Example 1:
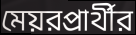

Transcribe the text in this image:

মেয়রপ্রার্থীর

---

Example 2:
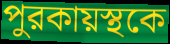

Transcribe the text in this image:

পুরকায়স্থকে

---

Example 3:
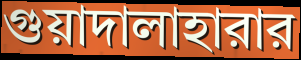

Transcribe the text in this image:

গুয়াদালাহারার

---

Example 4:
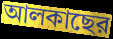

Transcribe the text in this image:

আলকাছের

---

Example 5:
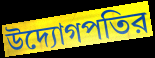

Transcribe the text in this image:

উদ্যোগপতির